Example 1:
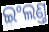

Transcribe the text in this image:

ଇଂଲଣ୍ତ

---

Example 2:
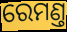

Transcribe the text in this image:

ରେମଣ୍ତ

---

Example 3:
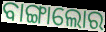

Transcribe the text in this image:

ବାଙ୍ଗାଲୋର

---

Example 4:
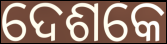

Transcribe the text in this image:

ଦେଶକେ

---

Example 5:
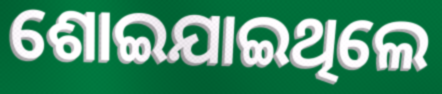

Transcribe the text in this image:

ଶୋଇଯାଇଥିଲେ